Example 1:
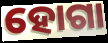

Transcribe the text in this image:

ହୋଗା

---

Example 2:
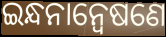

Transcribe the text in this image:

ଇନ୍ଧନାନ୍ଵେଷଣେ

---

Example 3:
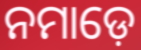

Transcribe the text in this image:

ନମାଡ଼େ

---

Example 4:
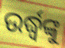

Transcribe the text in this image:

ଉର୍ଦ୍ଧ୍ୱଙ୍କୁ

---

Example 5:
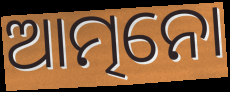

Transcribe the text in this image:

ଆତ୍ମନୋ